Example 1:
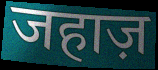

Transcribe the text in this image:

जहाज़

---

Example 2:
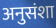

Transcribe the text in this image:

अनुसंशा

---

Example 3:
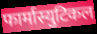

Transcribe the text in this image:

फार्मास्युटिकल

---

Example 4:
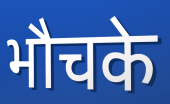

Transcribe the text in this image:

भौचके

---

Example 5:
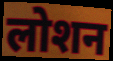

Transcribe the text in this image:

लोशन